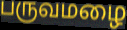
பருவமழை